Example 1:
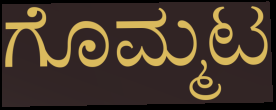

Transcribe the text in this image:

ಗೊಮ್ಮಟ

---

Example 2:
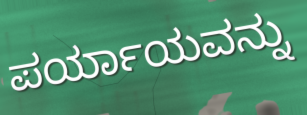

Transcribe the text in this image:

ಪರ್ಯಾಯವನ್ನು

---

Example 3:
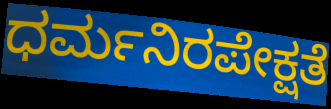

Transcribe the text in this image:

ಧರ್ಮನಿರಪೇಕ್ಷತೆ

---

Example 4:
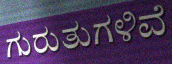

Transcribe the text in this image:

ಗುರುತುಗಳಿವೆ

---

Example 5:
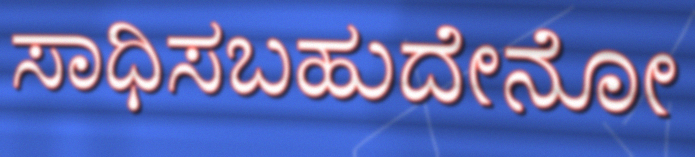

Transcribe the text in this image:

ಸಾಧಿಸಬಹುದೇನೋ